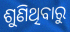
ଶୁଣିଥିବାରୁ